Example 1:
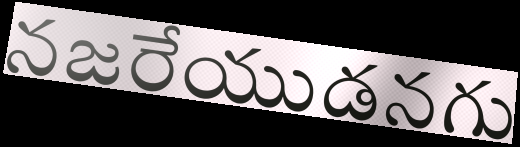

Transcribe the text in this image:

నజరేయుడనగు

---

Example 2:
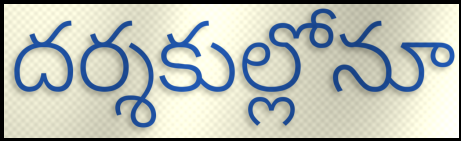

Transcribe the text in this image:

దర్శకుల్లోనూ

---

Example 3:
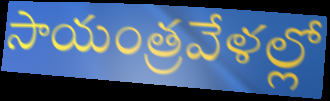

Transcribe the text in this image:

సాయంత్రవేళల్లో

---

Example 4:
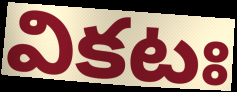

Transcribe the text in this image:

వికటః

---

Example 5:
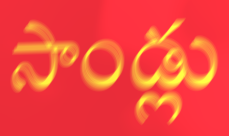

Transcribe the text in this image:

సాండ్లు